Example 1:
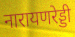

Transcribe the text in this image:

नारायणरेड्डी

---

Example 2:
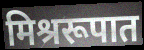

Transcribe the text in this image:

मिश्ररूपात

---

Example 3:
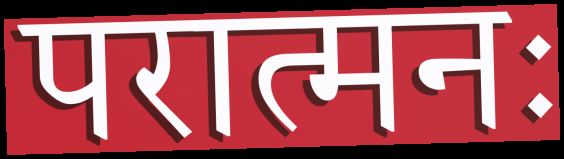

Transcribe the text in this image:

परात्मनः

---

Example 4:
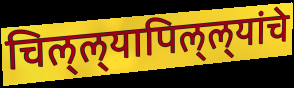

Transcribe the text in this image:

चिल्ल्यापिल्ल्यांचे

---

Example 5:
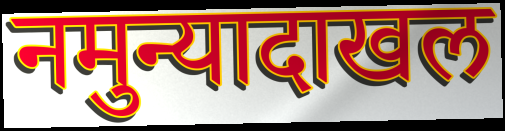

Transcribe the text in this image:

नमुन्यादाखल